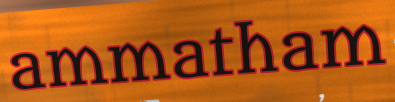
ammatham